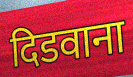
दिडवाना